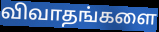
விவாதங்களை